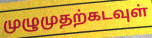
முழுமுதற்கடவுள்